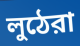
লুঠেরা